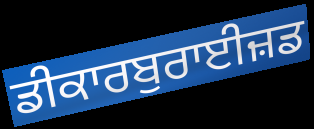
ਡੀਕਾਰਬੁਰਾਈਜ਼ਡ